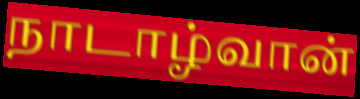
நாடாழ்வான்